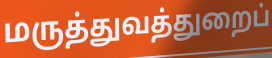
மருத்துவத்துறைப்